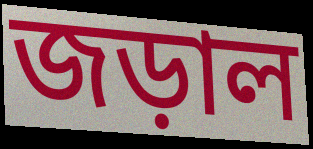
জড়াল